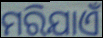
ମରିଯାଏଁ